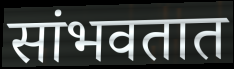
सांभवतात